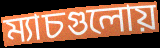
ম্যাচগুলোয়